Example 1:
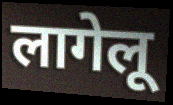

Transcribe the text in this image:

लागेलू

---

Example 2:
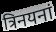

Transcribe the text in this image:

त्रिनयनां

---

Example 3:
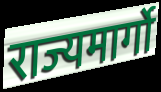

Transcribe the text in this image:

राज्यमार्गो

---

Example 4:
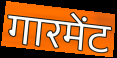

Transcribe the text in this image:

गारमेंट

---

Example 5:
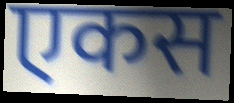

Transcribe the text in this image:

एकस